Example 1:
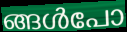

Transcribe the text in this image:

ങ്ങൾപോ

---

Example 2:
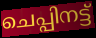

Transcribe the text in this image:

ചെപ്പിനട്ട്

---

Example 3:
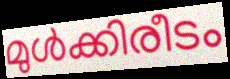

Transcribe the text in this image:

മുൾക്കിരീടം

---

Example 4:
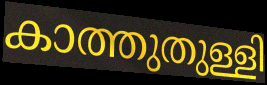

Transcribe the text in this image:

കാത്തുതുള്ളി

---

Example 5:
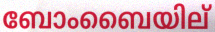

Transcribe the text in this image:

ബോംബൈയില്